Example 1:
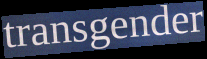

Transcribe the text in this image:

transgender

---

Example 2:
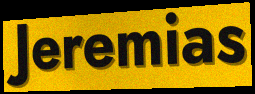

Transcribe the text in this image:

Jeremias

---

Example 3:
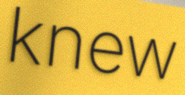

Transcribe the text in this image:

knew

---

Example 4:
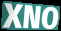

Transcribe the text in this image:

XNO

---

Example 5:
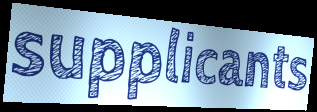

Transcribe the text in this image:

supplicants